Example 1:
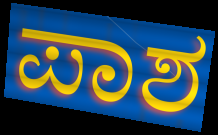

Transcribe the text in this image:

ಪಾಶ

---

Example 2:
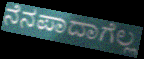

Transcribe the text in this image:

ನೆನಪಾದಾಗೆಲ್ಲ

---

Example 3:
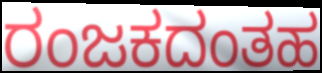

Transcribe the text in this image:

ರಂಜಕದಂತಹ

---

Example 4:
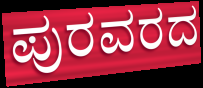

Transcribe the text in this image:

ಪುರವರದ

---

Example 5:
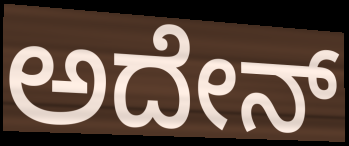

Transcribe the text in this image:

ಅದೇನ್